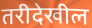
तरीदेखील